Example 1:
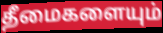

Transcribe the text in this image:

தீமைகளையும்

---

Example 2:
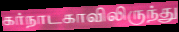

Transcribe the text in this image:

கர்நாடகாவிலிருந்து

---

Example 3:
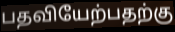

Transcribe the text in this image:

பதவியேற்பதற்கு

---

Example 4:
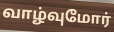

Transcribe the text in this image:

வாழ்வுமோர்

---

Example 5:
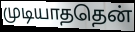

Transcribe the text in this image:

முடியாததென்